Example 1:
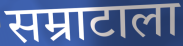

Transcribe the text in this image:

सम्राटाला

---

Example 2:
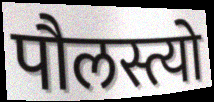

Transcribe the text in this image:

पौलस्त्यो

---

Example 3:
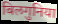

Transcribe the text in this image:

बिलगुनिया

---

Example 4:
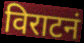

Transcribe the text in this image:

विराटनं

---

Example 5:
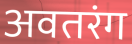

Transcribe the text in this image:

अवतरंग